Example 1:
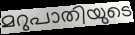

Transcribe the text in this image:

മറുപാതിയുടെ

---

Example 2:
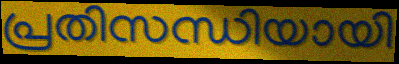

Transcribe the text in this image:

പ്രതിസന്ധിയായി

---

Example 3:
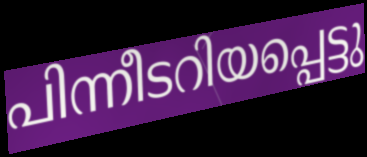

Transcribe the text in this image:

പിന്നീടറിയപ്പെട്ടു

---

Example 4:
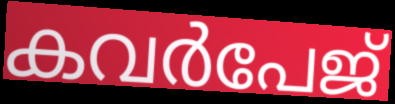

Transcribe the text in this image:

കവർപേജ്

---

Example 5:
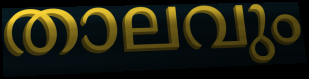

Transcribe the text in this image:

താലവും